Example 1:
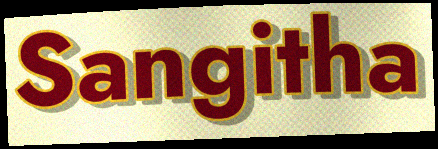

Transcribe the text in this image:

Sangitha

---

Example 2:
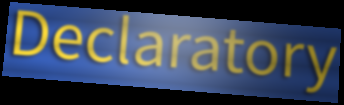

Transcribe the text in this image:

Declaratory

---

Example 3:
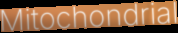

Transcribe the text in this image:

Mitochondrial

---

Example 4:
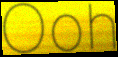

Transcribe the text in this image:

Ooh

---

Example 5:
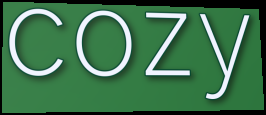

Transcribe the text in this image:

cozy